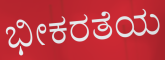
ಭೀಕರತೆಯ